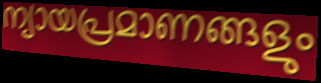
ന്യായപ്രമാണങ്ങളും